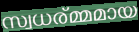
സ്വധര്മ്മമായ